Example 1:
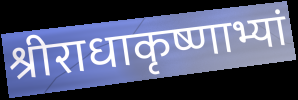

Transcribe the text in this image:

श्रीराधाकृष्णाभ्यां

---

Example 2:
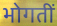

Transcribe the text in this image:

भोगतीं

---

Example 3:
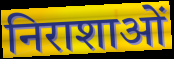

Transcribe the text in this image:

निराशाओं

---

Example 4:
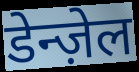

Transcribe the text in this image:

डेन्ज़ेल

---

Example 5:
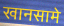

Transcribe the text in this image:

खानसामे